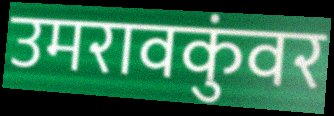
उमरावकुंवर